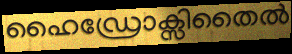
ഹൈഡ്രോക്സിതൈൽ